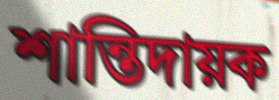
শান্তিদায়ক